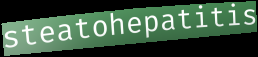
steatohepatitis